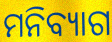
ମନିବ୍ୟାଗ